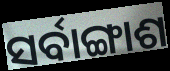
ସର୍ବାଙ୍ଗାଶ